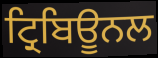
ਟ੍ਰਿਬਿਊਨਲ